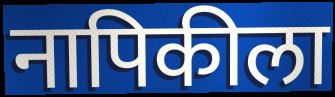
नापिकीला